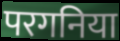
परगनिया